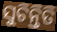
ସୁଚିନ୍ତିତି